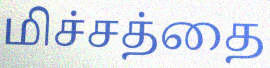
மிச்சத்தை